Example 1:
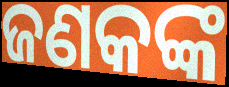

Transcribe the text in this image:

ଜଣକଙ୍କ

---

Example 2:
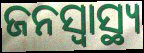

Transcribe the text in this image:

ଜନସ୍ୱାସ୍ଥ୍ୟ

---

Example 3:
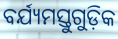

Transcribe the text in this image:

ବର୍ଯ୍ୟମସ୍ତୁଗୁଡ଼ିକ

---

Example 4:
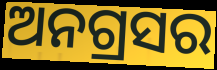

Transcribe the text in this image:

ଅନଗ୍ରସର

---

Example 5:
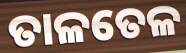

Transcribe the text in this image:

ତାଳତେଳ